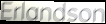
Erlandson